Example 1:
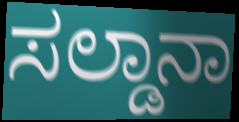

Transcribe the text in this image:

ಸಲ್ಡಾನಾ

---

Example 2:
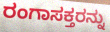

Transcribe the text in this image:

ರಂಗಾಸಕ್ತರನ್ನು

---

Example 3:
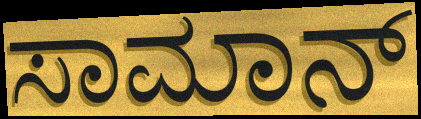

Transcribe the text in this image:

ಸಾಮಾನ್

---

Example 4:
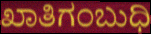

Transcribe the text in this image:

ಖಾತಿಗಂಬುಧಿ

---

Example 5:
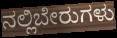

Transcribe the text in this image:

ನಲ್ಲಿಬೇರುಗಳು